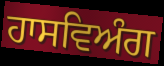
ਹਾਸਵਿਅੰਗ